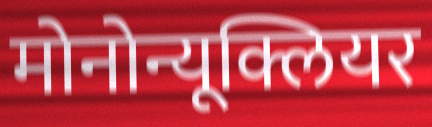
मोनोन्यूक्लियर